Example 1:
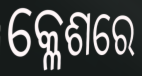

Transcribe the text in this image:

କ୍ଳେଶରେ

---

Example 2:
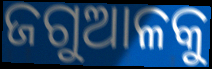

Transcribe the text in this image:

ଜଗୁଆଳକୁ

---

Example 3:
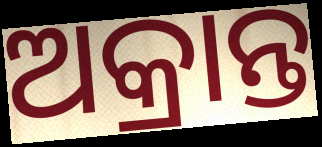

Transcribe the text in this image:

ଅକ୍ରାନ୍ତ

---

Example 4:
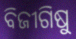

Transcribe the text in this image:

ବିଜୀଗିଷୁ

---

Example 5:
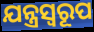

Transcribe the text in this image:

ଯନ୍ତ୍ରସ୍ୱରୂପ